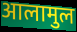
आलामुल